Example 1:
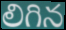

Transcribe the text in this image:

లిగిన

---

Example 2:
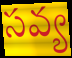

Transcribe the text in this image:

సవ్య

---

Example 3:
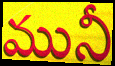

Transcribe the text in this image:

మునీ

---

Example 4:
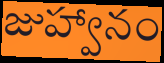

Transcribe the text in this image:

జుహ్వానం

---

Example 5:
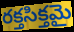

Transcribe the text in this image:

రక్తసిక్తమై